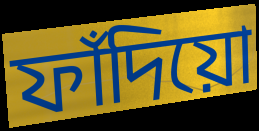
ফাঁদিয়ো